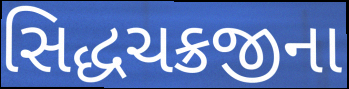
સિદ્ધચક્રજીના